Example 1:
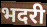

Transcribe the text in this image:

भदरी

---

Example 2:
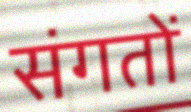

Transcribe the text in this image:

संगतों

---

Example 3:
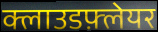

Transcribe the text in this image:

क्लाउडफ़्लेयर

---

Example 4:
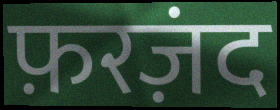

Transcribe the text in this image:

फ़रज़ंद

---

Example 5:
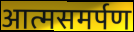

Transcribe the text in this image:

आत्मसमर्पण